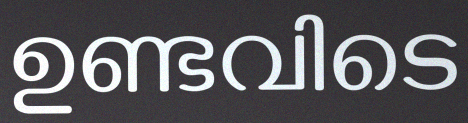
ഉണ്ടവിടെ